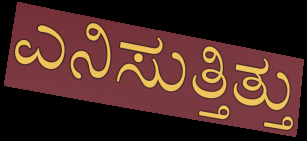
ಎನಿಸುತ್ತಿತ್ತು